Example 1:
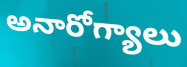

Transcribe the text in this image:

అనారోగ్యాలు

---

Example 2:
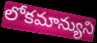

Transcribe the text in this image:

లోకమాన్యుని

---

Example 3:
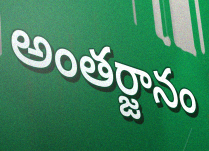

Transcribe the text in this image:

అంతర్జానం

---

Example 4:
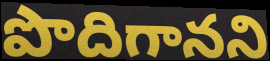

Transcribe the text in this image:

పొదిగానని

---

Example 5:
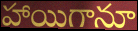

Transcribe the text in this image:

హాయిగానూ